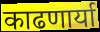
काढणार्या